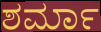
ಶರ್ಮಾ